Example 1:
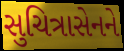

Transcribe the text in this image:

સુચિત્રાસેનને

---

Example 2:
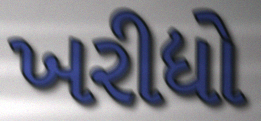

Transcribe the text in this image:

ખરીદ્યો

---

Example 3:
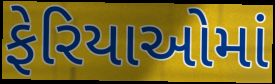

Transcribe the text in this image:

ફેરિયાઓમાં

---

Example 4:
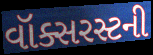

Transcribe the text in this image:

વૉક્સરસ્ટની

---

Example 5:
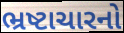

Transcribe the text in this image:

ભ્રષ્ટાચારનો